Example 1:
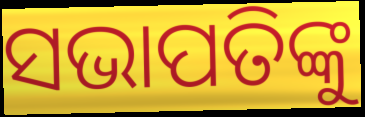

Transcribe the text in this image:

ସଭାପତିଙ୍କୁ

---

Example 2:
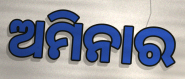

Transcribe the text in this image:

ଅମିନାର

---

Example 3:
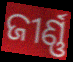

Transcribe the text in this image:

ଜୀର୍ଣ୍ଣ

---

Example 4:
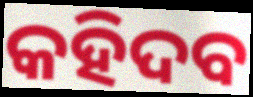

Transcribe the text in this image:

କହିଦବ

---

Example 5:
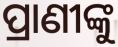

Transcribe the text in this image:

ପ୍ରାଣୀଙ୍କୁ